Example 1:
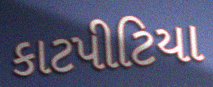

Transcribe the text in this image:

કાટપીટિયા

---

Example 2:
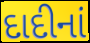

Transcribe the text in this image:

દાદીનાં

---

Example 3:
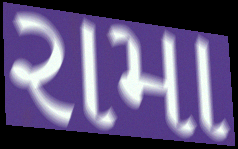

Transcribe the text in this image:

રામા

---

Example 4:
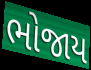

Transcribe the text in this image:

ભોજાય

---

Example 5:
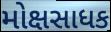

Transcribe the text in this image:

મોક્ષસાધક